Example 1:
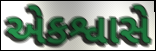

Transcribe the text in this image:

એકશ્વાસે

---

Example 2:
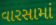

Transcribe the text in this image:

વારસામાં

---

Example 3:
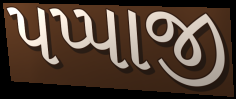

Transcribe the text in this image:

પપ્પાજી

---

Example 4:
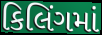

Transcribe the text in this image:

કિલિંગમાં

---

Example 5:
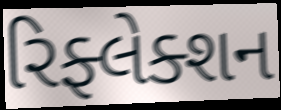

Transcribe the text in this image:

રિફ્લેક્શન